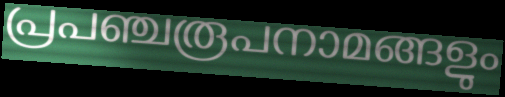
പ്രപഞ്ചരൂപനാമങ്ങളും